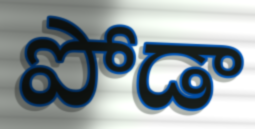
పోడా